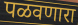
पळवणारा